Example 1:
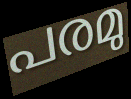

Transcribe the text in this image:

പരമു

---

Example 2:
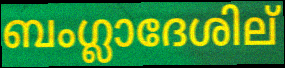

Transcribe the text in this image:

ബംഗ്ലാദേശില്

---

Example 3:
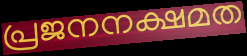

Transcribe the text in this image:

പ്രജനനക്ഷമത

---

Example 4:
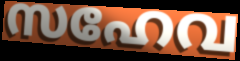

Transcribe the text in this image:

സഹേവ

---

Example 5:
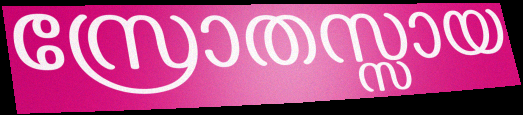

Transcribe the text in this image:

സ്രോതസ്സായ